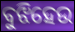
ବୁଝିହେଉ